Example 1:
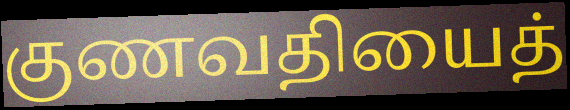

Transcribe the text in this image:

குணவதியைத்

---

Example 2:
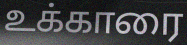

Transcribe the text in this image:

உக்காரை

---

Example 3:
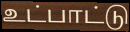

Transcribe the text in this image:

உட்பாட்டு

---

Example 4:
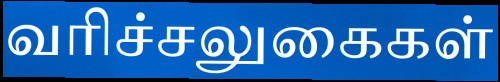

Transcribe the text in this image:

வரிச்சலுகைகள்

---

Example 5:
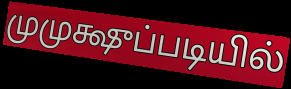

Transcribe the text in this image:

முமுக்ஷுப்படியில்